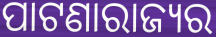
ପାଟଣାରାଜ୍ୟର